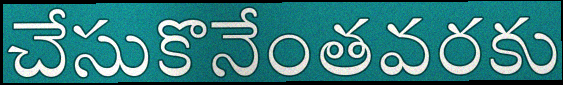
చేసుకొనేంతవరకు